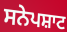
ਸਨੇਪਸ਼ਾਟ